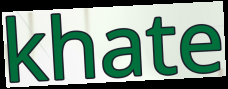
khate